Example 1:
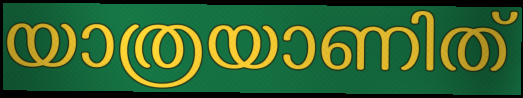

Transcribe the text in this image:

യാത്രയാണിത്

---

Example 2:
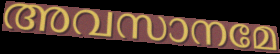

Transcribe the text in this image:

അവസാനമേ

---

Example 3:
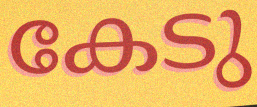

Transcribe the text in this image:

കേടു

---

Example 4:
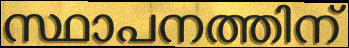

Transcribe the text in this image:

സ്ഥാപനത്തിന്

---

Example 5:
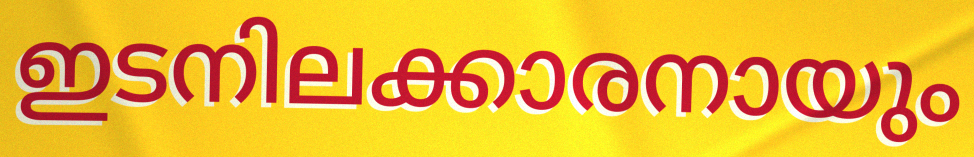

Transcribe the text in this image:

ഇടനിലക്കാരനായും